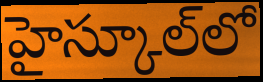
హైస్కూల్‌లో